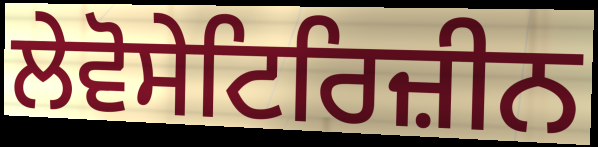
ਲੇਵੋਸੇਟਿਰਿਜ਼ੀਨ